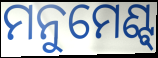
ମନୁମେଣ୍ଟ୍